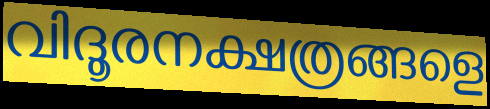
വിദൂരനക്ഷത്രങ്ങളെ